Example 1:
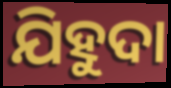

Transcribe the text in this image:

ଯିହୁଦା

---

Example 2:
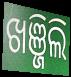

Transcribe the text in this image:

ଖଞ୍ଜିଲି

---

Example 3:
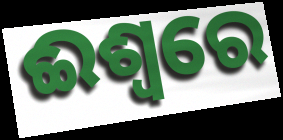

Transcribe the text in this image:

ଈଶ୍ଵରେ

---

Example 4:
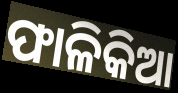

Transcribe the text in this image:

ଫାଳିକିଆ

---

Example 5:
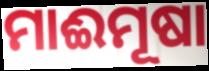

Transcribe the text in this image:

ମାଈମୂଷା